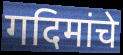
गदिमांचे